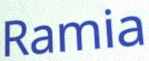
Ramia